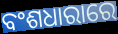
ବଂଶଧାରାରେ